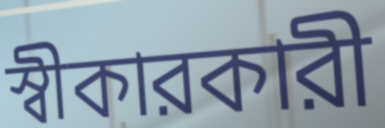
স্বীকারকারী